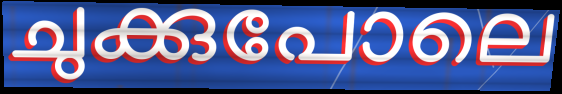
ചുക്കുപോലെ